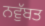
ਨਵੁੱਬਤ